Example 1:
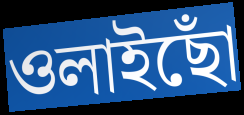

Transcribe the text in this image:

ওলাইছোঁ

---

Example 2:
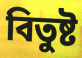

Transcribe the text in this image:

বিতুষ্ট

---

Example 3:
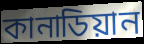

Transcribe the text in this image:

কানাডিয়ান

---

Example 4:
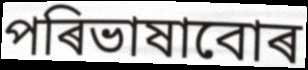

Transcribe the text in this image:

পৰিভাষাবোৰ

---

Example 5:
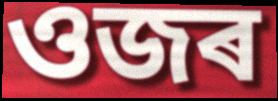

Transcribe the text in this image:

ওজৰ